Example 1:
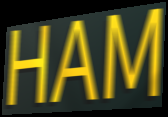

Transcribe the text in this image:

HAM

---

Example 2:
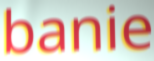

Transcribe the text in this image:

banie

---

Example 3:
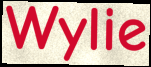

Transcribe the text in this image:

Wylie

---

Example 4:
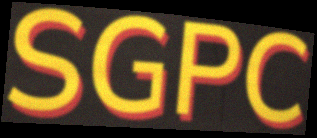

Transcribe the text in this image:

SGPC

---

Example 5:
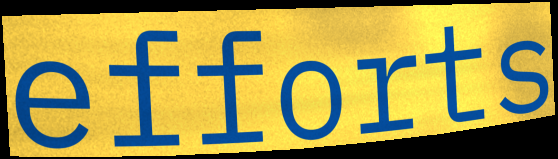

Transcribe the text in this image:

efforts